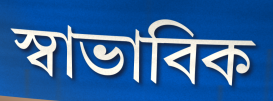
স্বাভাবিক